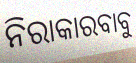
ନିରାକାରବାବୁ